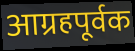
आग्रहपूर्वक